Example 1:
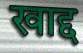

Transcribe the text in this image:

खाद्द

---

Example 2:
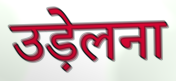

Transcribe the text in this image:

उड़ेलना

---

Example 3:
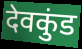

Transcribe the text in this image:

देवकुंड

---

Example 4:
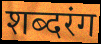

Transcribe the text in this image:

शब्दरंग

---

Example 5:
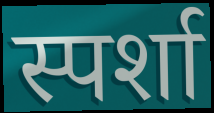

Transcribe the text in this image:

स्पर्शा